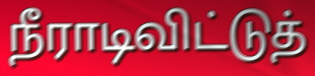
நீராடிவிட்டுத்